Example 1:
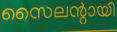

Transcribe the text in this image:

സൈലന്റായി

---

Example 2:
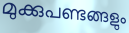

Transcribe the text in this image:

മുക്കുപണ്ടങ്ങളും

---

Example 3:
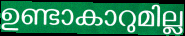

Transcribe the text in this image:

ഉണ്ടാകാറുമില്ല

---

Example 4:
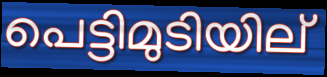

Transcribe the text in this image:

പെട്ടിമുടിയില്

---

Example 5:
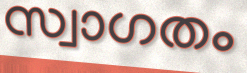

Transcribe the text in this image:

സ്വാഗതം